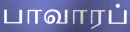
பாவாரப்